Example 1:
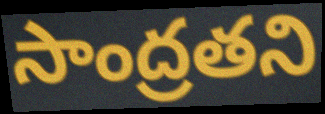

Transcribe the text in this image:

సాంద్రతని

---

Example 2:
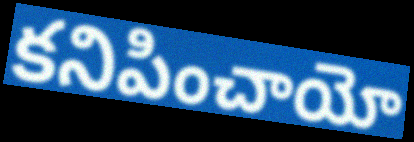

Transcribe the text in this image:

కనిపించాయో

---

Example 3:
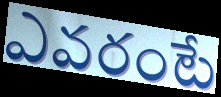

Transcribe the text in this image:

ఎవరంటే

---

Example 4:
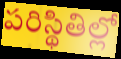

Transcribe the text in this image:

పరిస్థితిల్లో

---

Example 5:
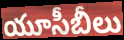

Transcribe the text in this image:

యూసీబీలు